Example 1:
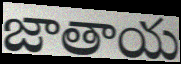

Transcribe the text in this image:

జాతాయ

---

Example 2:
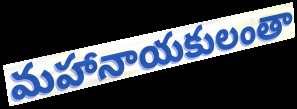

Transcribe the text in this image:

మహానాయకులంతా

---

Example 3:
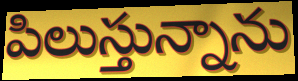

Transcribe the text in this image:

పిలుస్తున్నాను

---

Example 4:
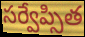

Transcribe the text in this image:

సర్వేప్సిత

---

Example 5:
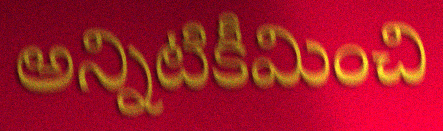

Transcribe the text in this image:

అన్నిటికీమించి